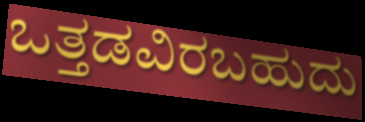
ಒತ್ತಡವಿರಬಹುದು